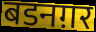
बडनग़र